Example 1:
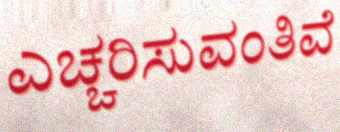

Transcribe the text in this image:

ಎಚ್ಚರಿಸುವಂತಿವೆ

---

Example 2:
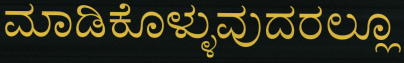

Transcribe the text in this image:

ಮಾಡಿಕೊಳ್ಳುವುದರಲ್ಲೂ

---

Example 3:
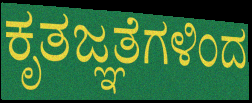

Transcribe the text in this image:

ಕೃತಜ್ಞತೆಗಳಿಂದ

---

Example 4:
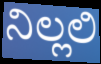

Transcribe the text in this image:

ನಿಲ್ಲಲಿ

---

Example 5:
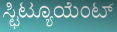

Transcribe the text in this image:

ಸ್ಟಿಟ್ಯೂಯೆಂಟ್